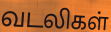
வடலிகள்